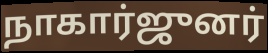
நாகார்ஜுனர்